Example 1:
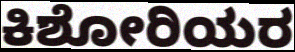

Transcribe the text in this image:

ಕಿಶೋರಿಯರ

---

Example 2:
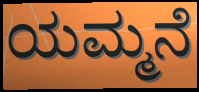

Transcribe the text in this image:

ಯಮ್ಮನೆ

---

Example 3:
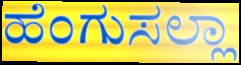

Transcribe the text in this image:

ಹೆಂಗುಸಲ್ಲಾ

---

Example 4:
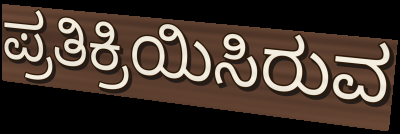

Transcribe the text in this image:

ಪ್ರತಿಕ್ರಿಯಿಸಿರುವ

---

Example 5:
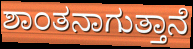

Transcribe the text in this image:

ಶಾಂತನಾಗುತ್ತಾನೆ